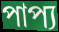
পাপ্য